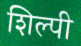
शिल्पी